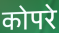
कोपरे